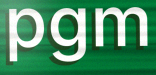
pgm